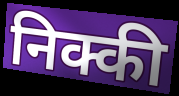
निक्की